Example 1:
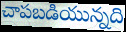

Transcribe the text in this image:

చాపబడియున్నది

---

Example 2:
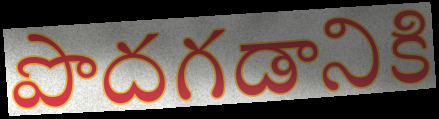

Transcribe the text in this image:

పొదగడానికి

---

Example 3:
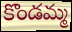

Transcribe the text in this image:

కొండమ్మ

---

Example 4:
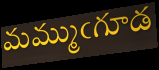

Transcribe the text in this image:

మమ్ముఁగూడ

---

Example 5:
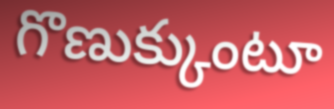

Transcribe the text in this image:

గొణుక్కుంటూ